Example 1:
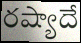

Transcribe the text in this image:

రష్యాదే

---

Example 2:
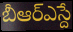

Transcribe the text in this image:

బీఆర్ఎస్దే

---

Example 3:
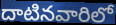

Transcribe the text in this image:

దాటినవారిలో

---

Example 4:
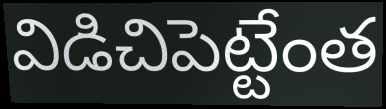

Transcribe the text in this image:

విడిచిపెట్టేంత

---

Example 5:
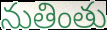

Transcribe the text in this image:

నుతింతు